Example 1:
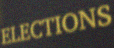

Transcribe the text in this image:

ELECTIONS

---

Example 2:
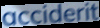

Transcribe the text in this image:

acciderit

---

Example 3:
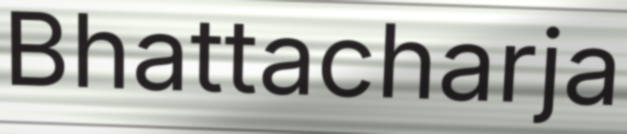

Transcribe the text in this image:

Bhattacharja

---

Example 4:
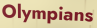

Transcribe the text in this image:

Olympians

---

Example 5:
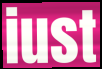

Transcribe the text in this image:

iust